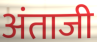
अंताजी